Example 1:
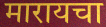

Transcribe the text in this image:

मारायचा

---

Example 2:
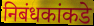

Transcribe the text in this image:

निबंधकांकडे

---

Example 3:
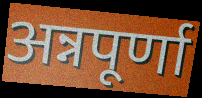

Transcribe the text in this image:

अन्नपूर्णा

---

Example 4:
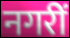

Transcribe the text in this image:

नगरीं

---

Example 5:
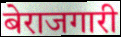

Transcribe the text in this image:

बेराजगारी